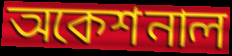
অকেশনাল